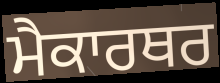
ਮੈਕਾਰਥਰ